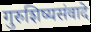
गुरुशिष्यसंवादे